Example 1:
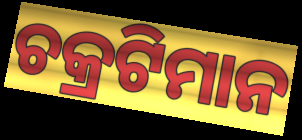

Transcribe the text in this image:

ଚକ୍ରଟିମାନ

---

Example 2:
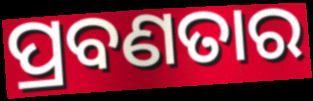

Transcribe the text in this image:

ପ୍ରବଣତାର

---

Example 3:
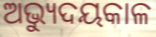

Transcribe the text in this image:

ଅଭ୍ୟୁଦୟକାଳ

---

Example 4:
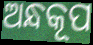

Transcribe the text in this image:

ଅନ୍ଧକୂପ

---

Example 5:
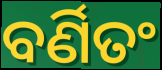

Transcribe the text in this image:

ବର୍ଣିତଂ